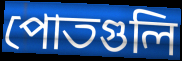
পোতগুলি